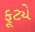
ફૂટ્યે